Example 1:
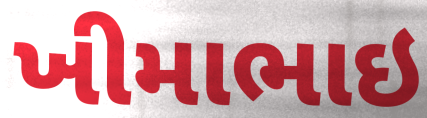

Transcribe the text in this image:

ખીમાભાઇ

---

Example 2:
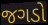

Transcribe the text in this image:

જગડો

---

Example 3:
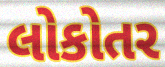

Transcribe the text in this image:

લોકોતર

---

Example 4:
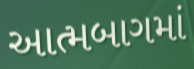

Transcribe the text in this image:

આત્મબાગમાં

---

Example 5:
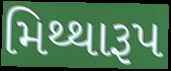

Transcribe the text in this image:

મિથ્થારૂપ